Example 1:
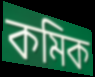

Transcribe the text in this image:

কমিক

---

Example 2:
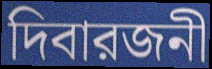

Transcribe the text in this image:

দিবারজনী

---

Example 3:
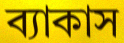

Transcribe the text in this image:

ব্যাকাস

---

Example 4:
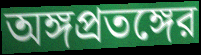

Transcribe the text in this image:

অঙ্গপ্রতঙ্গের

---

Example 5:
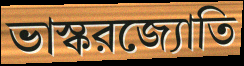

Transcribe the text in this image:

ভাস্করজ্যোতি